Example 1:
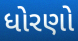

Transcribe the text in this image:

ધોરણો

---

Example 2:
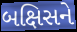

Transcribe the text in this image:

બક્ષિસને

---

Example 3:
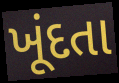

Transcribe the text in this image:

ખૂંદતા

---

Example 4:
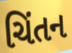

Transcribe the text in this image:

ચિંતન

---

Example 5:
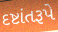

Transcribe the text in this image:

દષ્ટાંતરૂપે